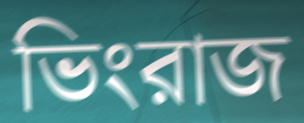
ভিংরাজ